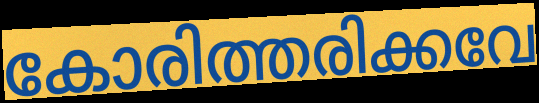
കോരിത്തരിക്കവേ